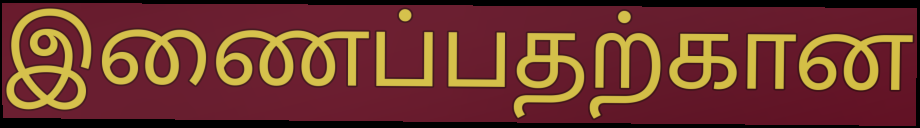
இணைப்பதற்கான